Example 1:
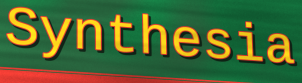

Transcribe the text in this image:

Synthesia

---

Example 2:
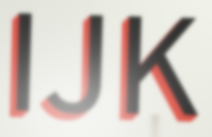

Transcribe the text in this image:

IJK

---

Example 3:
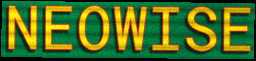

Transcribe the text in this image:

NEOWISE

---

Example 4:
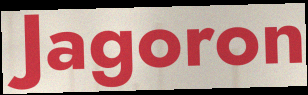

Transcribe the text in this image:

Jagoron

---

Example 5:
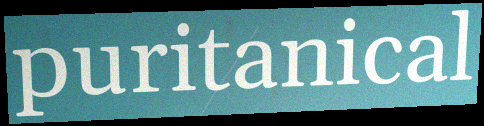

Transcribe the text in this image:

puritanical